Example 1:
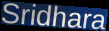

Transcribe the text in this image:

Sridhara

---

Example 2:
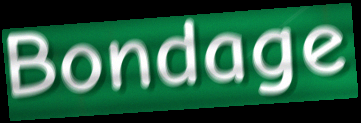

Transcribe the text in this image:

Bondage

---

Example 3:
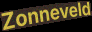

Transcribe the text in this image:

Zonneveld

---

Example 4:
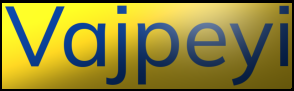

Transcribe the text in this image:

Vajpeyi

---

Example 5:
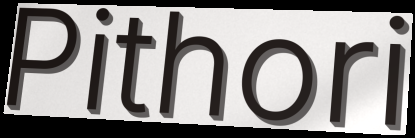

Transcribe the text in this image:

Pithori